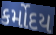
કર્મોદય